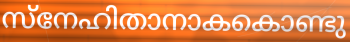
സ്നേഹിതാനാകകൊണ്ടു